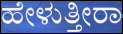
ಹೇಳುತ್ತೀರಾ